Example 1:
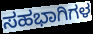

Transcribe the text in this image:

ಸಹಭಾಗಿಗಳ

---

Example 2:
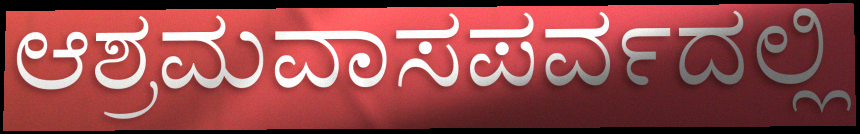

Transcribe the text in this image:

ಆಶ್ರಮವಾಸಪರ್ವದಲ್ಲಿ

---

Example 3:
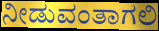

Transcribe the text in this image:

ನೀಡುವಂತಾಗಲಿ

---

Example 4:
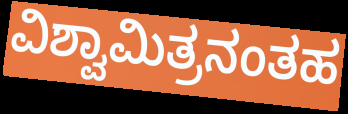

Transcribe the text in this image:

ವಿಶ್ವಾಮಿತ್ರನಂತಹ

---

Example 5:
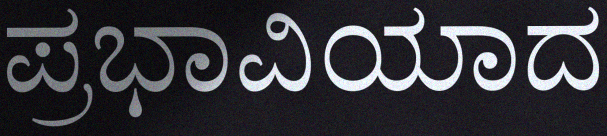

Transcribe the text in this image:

ಪ್ರಭಾವಿಯಾದ